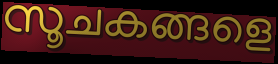
സൂചകങ്ങളെ